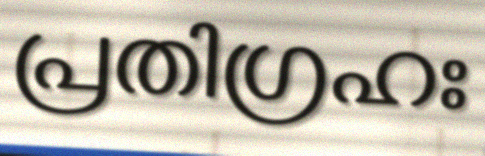
പ്രതിഗ്രഹഃ